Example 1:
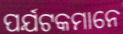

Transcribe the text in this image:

ପର୍ଯଟକମାନେ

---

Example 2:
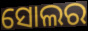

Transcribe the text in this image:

ସୋଲର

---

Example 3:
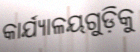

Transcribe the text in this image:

କାର୍ଯ୍ୟାଳୟଗୁଡ଼ିକୁ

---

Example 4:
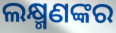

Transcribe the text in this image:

ଲକ୍ଷ୍ମଣଙ୍କର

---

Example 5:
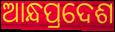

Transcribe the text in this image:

ଆନ୍ଧପ୍ରଦେଶ